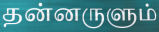
தன்னருளும்